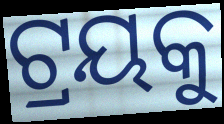
ଟ୍ରୟକୁ